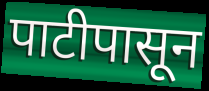
पाटीपासून